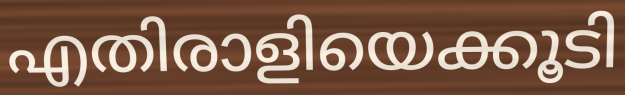
എതിരാളിയെക്കൂടി